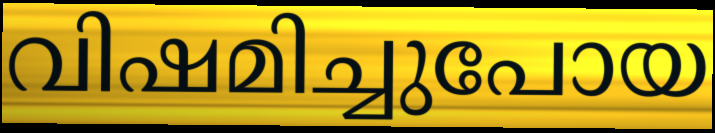
വിഷമിച്ചുപോയ